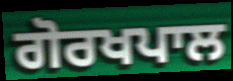
ਗੋਰਖਪਾਲ